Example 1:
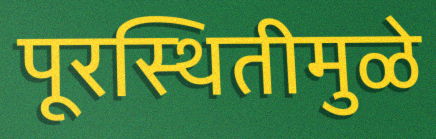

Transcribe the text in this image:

पूरस्थितीमुळे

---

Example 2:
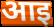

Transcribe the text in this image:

आइ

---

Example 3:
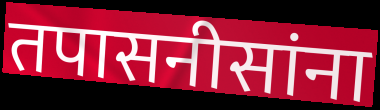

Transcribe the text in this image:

तपासनीसांना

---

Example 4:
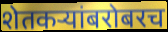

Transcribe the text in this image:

शेतकऱ्यांबरोबरच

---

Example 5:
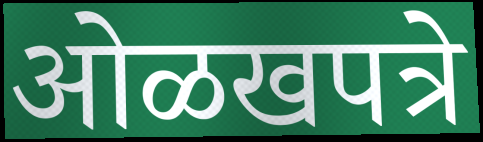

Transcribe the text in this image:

ओळखपत्रे